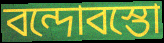
বন্দোবস্তো